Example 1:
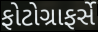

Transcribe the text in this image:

ફોટોગ્રાફર્સે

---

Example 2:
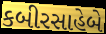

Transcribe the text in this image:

કબીરસાહેબે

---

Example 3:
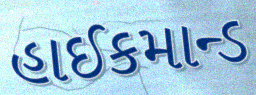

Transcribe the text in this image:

હાઈકમાન્ડ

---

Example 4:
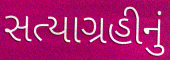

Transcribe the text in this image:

સત્યાગ્રહીનું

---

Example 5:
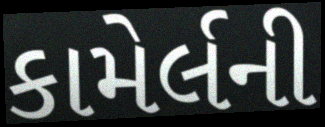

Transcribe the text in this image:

કામેર્લની